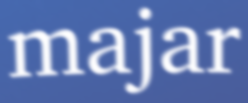
majar